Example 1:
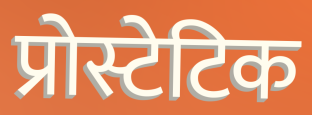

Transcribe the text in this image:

प्रोस्टेटिक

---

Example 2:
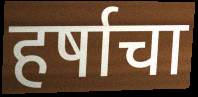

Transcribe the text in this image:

हर्षाचा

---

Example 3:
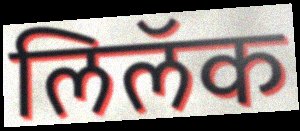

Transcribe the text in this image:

लिलॅक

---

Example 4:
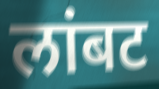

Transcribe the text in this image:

लांबट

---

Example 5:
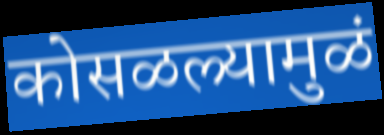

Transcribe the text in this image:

कोसळल्यामुळं